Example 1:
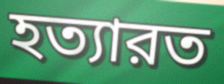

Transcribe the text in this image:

হত্যারত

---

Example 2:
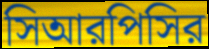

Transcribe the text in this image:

সিআরপিসির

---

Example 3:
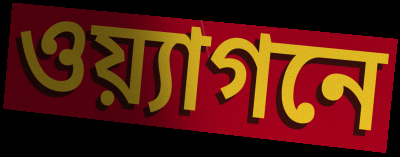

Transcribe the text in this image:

ওয়্যাগনে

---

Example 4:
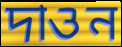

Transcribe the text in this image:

দাওন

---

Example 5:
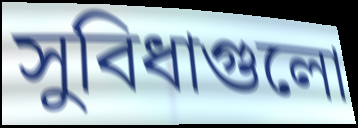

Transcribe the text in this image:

সুবিধাগুলো